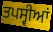
ਤਪਸ੍ਵੀਆਂ